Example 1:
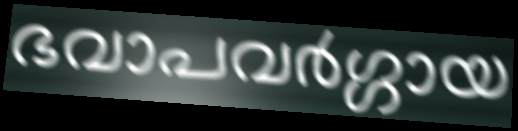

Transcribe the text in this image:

ഭവാപവർഗ്ഗായ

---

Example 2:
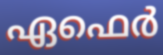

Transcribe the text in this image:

ഏഫെർ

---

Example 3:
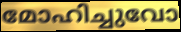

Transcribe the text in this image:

മോഹിച്ചുവോ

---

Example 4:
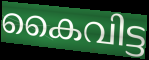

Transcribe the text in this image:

കൈവിട്ട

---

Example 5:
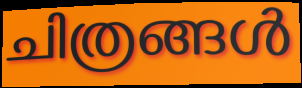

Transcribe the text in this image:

ചിത്രങ്ങൾ